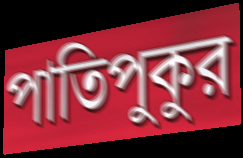
পাতিপুকুর